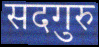
सदगुरु